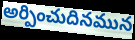
అర్పించుదినమున